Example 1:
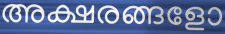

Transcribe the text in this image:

അക്ഷരങ്ങളോ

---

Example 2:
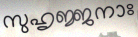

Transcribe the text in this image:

സുഹൃജ്ജനാഃ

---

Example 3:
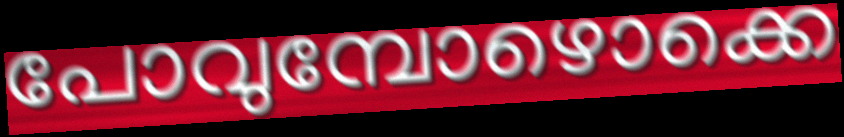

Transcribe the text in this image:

പോവുമ്പോഴൊക്കെ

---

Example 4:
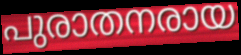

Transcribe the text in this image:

പുരാതനരായ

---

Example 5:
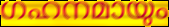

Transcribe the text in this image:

ഗഹനമായും